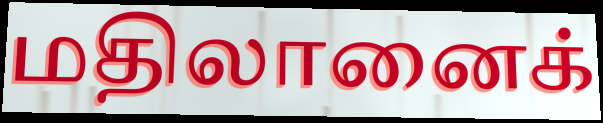
மதிலானைக்